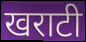
खराटी